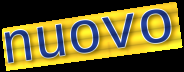
nuovo